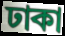
ঢাকা